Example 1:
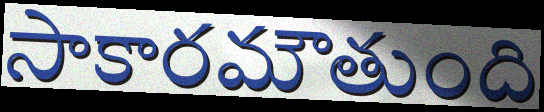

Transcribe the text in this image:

సాకారమౌతుంది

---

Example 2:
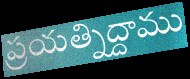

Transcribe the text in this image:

ప్రయత్నిద్దాము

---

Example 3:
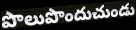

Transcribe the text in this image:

పొలుపొందుచుండు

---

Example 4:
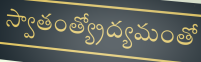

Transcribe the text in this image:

స్వాతంత్య్రోద్యమంతో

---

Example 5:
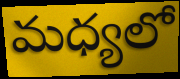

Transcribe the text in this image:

మధ్యలో